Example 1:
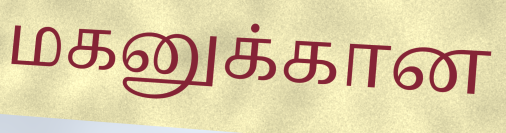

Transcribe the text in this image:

மகனுக்கான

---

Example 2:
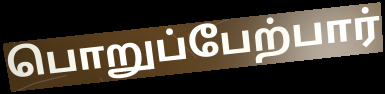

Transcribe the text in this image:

பொறுப்பேற்பார்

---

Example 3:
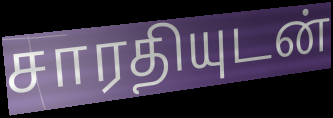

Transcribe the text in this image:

சாரதியுடன்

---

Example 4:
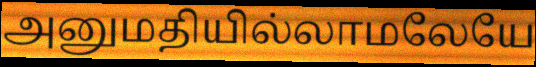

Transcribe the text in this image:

அனுமதியில்லாமலேயே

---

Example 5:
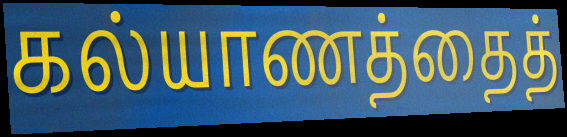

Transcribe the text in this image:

கல்யாணத்தைத்